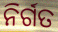
ନିର୍ଗତ